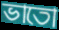
ভাতো